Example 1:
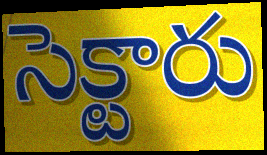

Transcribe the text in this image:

సెక్టారు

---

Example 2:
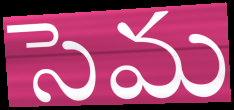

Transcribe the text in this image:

సెమ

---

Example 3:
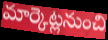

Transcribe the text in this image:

మార్కెట్లనుంచి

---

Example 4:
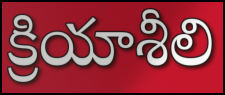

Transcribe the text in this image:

క్రియాశీలి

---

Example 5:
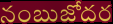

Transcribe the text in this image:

నంబుజోదర